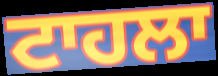
ਟਾਹਲਾ